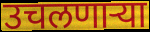
उचलणाऱ्या